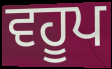
ਵਹੂਪ